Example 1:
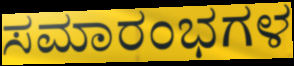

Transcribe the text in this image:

ಸಮಾರಂಭಗಳ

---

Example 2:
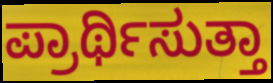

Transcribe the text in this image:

ಪ್ರಾರ್ಥಿಸುತ್ತಾ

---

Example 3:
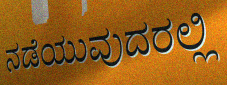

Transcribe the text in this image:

ನಡೆಯುವುದರಲ್ಲಿ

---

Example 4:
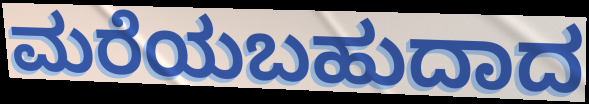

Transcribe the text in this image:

ಮರೆಯಬಹುದಾದ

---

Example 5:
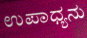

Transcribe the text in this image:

ಉಪಾಧ್ಯನು